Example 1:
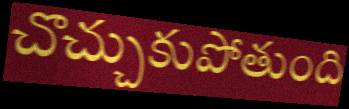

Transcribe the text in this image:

చొచ్చుకుపోతుంది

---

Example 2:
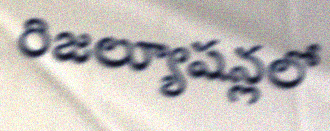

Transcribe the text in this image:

రిజల్యూషన్లలో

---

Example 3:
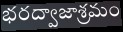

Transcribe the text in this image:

భరద్వాజాశ్రమం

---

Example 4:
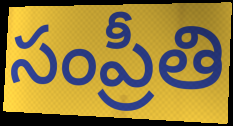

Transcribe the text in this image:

సంప్రీతి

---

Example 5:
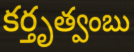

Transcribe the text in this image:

కర్తృత్వంబు